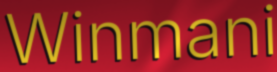
Winmani